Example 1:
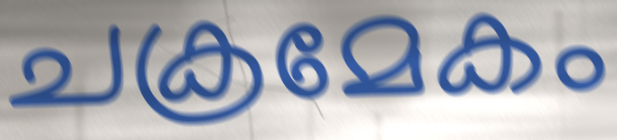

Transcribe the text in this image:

ചക്രമേകം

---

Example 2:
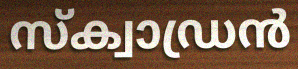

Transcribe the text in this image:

സ്ക്വാഡ്രൻ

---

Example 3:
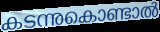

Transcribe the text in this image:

കടന്നുകൊണ്ടാൽ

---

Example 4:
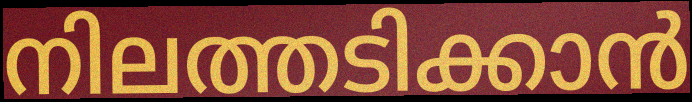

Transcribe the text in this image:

നിലത്തടിക്കാൻ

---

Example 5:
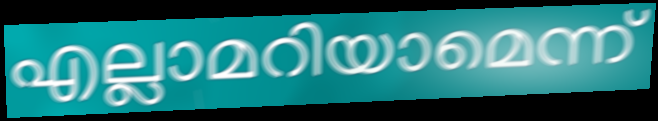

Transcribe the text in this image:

എല്ലാമറിയാമെന്ന്